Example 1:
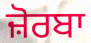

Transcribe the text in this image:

ਜ਼ੋਰਬਾ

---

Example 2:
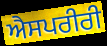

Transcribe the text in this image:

ਐਸਪਰੀਰੀ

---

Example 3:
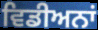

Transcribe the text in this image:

ਵਿਡੀਅਨਾਂ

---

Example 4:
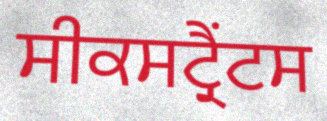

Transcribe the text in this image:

ਸੀਕਸਟ੍ਰੈਂਟਸ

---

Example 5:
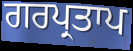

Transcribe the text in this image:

ਗਰਪ੍ਰਤਾਪ